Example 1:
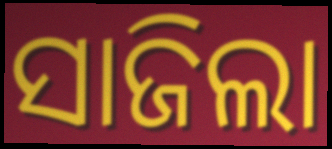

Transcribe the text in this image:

ସାଜିଲା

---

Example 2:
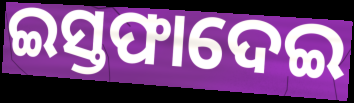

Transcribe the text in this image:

ଇସ୍ତଫାଦେଇ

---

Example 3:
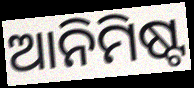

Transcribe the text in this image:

ଆନିମିଷ୍ଟ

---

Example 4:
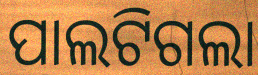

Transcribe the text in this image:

ପାଲଟିଗଲା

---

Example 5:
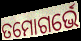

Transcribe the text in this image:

ତମୋଗର୍ଭେ